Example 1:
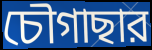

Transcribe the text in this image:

চৌগাছার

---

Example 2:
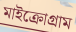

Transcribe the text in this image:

মাইক্রোগ্রাম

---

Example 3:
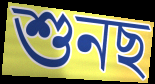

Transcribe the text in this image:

শুনছ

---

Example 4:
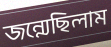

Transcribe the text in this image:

জন্মেছিলাম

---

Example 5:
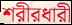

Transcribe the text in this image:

শরীরধারী